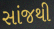
સાંજથી